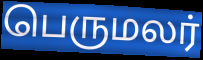
பெருமலர்